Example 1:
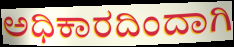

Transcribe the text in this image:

ಅಧಿಕಾರದಿಂದಾಗಿ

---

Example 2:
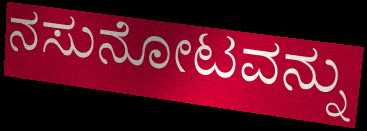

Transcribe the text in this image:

ನಸುನೋಟವನ್ನು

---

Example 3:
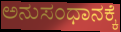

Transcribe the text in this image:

ಅನುಸಂಧಾನಕ್ಕೆ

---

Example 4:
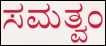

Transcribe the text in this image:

ಸಮತ್ವಂ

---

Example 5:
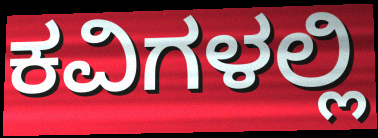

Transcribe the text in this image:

ಕವಿಗಳಲ್ಲಿ